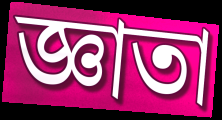
জ্ঞাতা